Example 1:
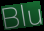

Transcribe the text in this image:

Blu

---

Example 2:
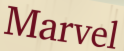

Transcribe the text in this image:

Marvel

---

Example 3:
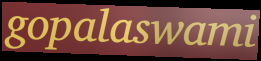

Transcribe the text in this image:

gopalaswami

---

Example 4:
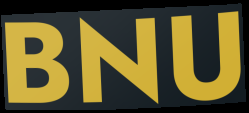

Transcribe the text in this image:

BNU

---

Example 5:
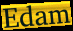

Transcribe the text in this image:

Edam